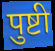
पुष्टी